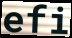
efi